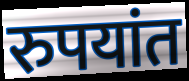
रुपयांत